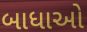
બાધાઓ